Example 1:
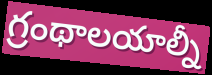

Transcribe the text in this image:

గ్రంథాలయాల్నీ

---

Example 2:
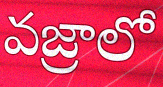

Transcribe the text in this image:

వజ్రాలో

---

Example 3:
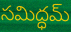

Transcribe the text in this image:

సమిద్ధమ్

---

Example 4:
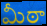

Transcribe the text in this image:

మీఠా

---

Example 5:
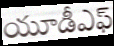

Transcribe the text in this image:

యూడీఎఫ్